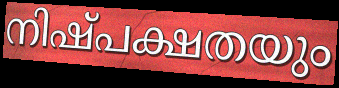
നിഷ്പക്ഷതയും